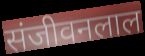
संजीवनलाल